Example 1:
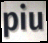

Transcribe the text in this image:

piu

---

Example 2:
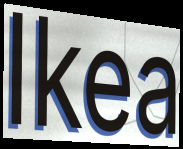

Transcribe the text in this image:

Ikea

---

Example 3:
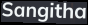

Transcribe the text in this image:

Sangitha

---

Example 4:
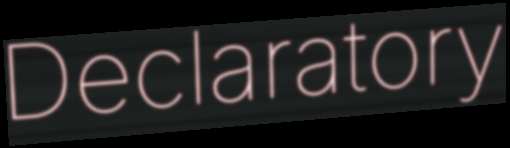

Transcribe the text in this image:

Declaratory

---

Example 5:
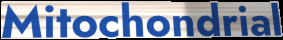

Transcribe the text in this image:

Mitochondrial